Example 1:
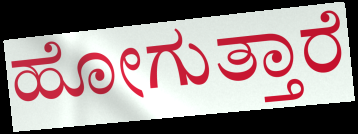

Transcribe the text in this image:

ಹೋಗುತ್ತಾರೆ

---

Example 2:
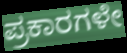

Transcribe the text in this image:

ಪ್ರಕಾರಗಳೇ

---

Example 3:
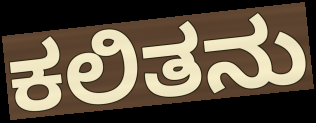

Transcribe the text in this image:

ಕಲಿತನು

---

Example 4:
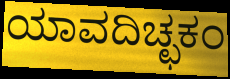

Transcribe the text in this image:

ಯಾವದಿಚ್ಛಕಂ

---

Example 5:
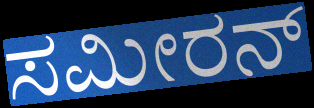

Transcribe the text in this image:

ಸಮೀರನ್